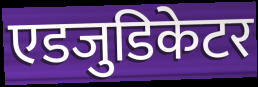
एडजुडिकेटर